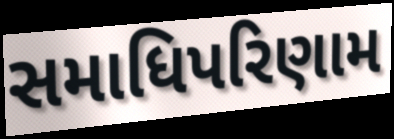
સમાધિપરિણામ